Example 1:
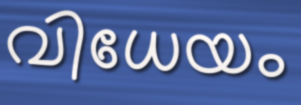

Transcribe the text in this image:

വിധേയം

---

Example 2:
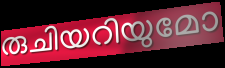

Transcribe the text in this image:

രുചിയറിയുമോ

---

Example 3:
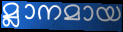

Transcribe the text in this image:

മ്ലാനമായ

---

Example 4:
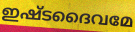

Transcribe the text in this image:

ഇഷ്ടദൈവമേ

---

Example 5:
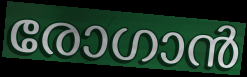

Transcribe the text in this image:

രോഗാൻ